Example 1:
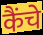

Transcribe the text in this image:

कैंचे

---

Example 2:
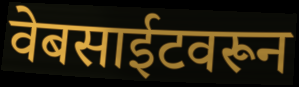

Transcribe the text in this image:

वेबसाईटवरून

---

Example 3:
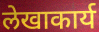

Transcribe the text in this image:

लेखाकार्य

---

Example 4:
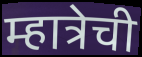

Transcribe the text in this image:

म्हात्रेची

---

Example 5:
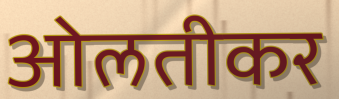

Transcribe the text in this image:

ओलतीकर